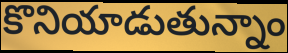
కొనియాడుతున్నాం